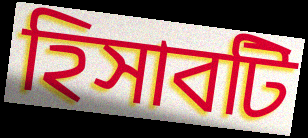
হিসাবটি